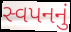
સ્વપનનું